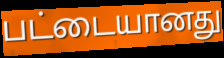
பட்டையானது